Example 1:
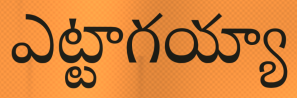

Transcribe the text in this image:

ఎట్టాగయ్యా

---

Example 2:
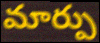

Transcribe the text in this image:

మార్పు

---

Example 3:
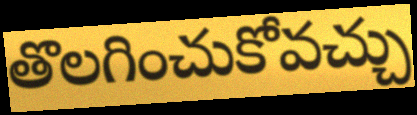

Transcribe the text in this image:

తొలగించుకోవచ్చు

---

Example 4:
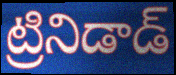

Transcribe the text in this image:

ట్రినిడాడ్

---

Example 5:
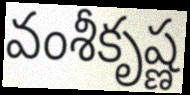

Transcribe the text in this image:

వంశీకృష్ణ